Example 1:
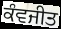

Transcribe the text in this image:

ਕੰਵਜੀਤ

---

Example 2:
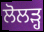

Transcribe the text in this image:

ਲੋਲੜ੍ਹ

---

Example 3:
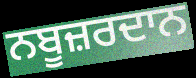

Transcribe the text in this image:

ਨਬੂਜ਼ਰਦਾਨ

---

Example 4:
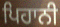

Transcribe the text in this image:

ਪਿਹਾਨੀ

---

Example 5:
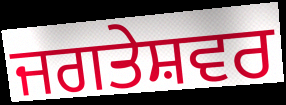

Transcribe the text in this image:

ਜਗਤੇਸ਼ਵਰ